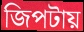
জিপটায়